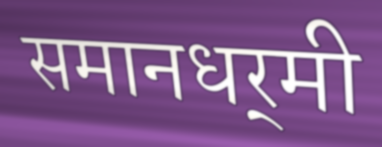
समानधर्मी